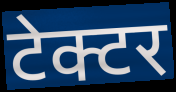
टेक्टर